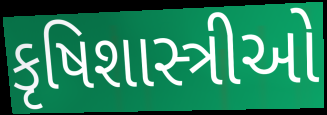
કૃષિશાસ્ત્રીઓ